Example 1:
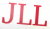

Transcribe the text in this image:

JLL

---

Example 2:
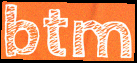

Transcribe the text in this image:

btm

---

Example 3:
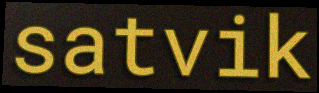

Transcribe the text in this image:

satvik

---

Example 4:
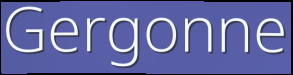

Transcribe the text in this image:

Gergonne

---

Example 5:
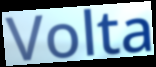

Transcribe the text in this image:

Volta